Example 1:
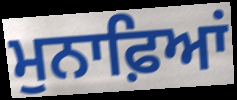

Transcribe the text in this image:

ਮੁਨਾਫ਼ਿਆਂ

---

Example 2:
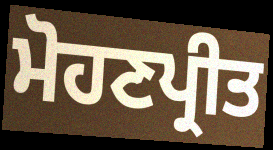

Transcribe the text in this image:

ਮੋਹਣਪ੍ਰੀਤ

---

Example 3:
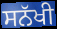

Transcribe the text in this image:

ਸਨੱਖੀ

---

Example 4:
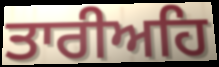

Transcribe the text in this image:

ਤਾਰੀਅਹਿ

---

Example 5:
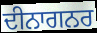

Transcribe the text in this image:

ਦੀਨਾਗਨਰ